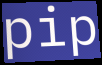
pip